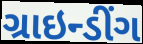
ગ્રાઇન્ડીંગ